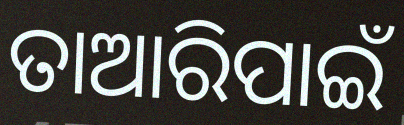
ତାଆରିପାଇଁ